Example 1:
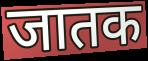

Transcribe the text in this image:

जातक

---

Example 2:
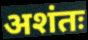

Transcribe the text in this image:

अशंतः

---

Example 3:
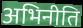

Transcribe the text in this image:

अभिनीति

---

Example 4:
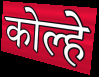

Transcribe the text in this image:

कोल्हे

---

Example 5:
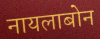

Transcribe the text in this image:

नायलाबोन